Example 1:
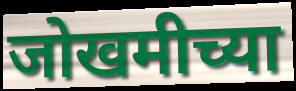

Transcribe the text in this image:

जोखमीच्या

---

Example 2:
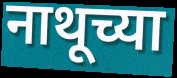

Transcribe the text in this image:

नाथूच्या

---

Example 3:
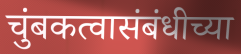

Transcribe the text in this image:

चुंबकत्वासंबंधीच्या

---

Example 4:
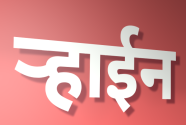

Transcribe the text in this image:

ऱ्हाईन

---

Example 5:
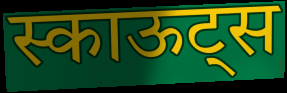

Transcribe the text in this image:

स्काऊट्स